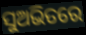
ସୁଅଭିତରେ